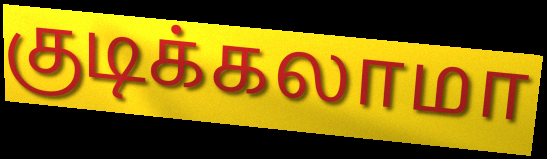
குடிக்கலாமா